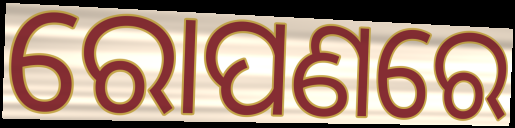
ରୋପଣରେ